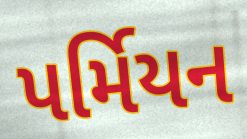
પર્મિયન